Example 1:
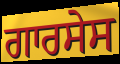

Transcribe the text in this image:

ਗਾਰਸੇਸ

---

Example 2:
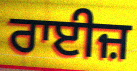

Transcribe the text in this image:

ਰਾਈਜ਼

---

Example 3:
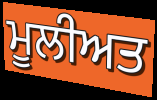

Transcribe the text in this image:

ਮੂਲੀਅਤ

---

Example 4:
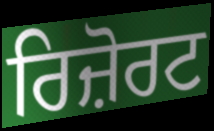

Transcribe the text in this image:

ਰਿਜ਼ੋਰਟ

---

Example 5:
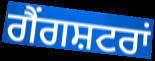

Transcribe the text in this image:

ਗੈਂਗਸ਼ਟਰਾਂ